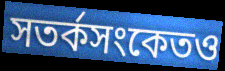
সতর্কসংকেতও